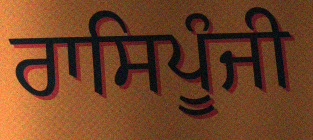
ਰਾਸਿਪੂੰਜੀ